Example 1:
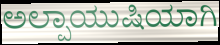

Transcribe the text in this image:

ಅಲ್ಪಾಯುಷಿಯಾಗಿ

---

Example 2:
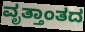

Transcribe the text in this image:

ವೃತ್ತಾಂತದ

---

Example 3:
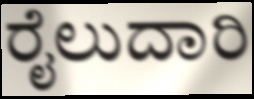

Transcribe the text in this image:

ರೈಲುದಾರಿ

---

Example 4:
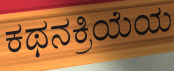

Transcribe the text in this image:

ಕಥನಕ್ರಿಯೆಯ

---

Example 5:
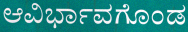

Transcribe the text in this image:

ಆವಿರ್ಭಾವಗೊಂಡ